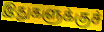
இதுகளுக்குச்